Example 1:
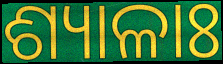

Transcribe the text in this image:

ଶ୍ୟାଳାଃ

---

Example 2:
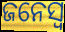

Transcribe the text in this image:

ଜନେସ୍ୱ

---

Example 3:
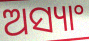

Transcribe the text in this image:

ଅସ୍ୟାଂ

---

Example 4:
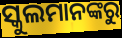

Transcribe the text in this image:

ସ୍କୁଲମାନଙ୍କରୁ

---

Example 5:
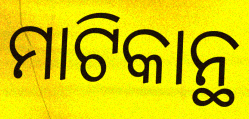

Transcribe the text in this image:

ମାଟିକାନ୍ଥ